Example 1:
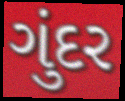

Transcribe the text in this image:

ગુંદર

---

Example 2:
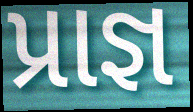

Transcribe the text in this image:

પ્રાજ્ઞ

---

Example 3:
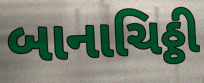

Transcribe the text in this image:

બાનાચિઠ્ઠી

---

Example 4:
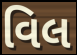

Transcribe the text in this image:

વિલ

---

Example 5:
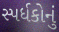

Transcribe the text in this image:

સ્પર્ધકોનું